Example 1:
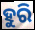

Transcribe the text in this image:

ହୁରି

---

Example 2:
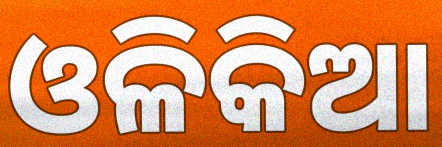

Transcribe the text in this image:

ଓଳିକିଆ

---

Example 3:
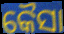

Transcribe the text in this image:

କୈସା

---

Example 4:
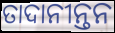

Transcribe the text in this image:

ତାଦାନୀନ୍ତନ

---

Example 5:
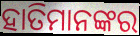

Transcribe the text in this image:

ହାତିମାନଙ୍କର